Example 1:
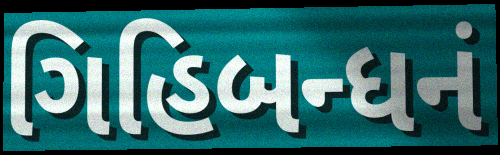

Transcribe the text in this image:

ગિહિબન્ધનં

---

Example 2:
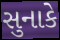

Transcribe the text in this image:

સુનાકે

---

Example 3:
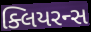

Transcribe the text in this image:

ક્લિયરન્સ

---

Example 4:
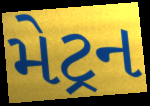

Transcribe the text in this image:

મેટ્રન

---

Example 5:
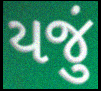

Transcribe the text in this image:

યજું